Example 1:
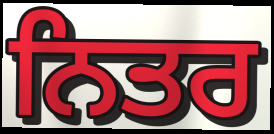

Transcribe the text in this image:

ਨਿਤਰ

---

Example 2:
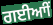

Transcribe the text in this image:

ਗਈਆੀਂ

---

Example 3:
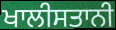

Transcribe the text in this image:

ਖਾਲੀਸਤਾਨੀ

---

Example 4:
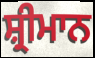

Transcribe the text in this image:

ਸ਼੍ਰੀਮਾਨ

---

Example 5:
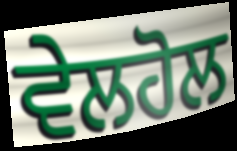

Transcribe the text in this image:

ਵੇਲਹੋਲ